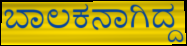
ಬಾಲಕನಾಗಿದ್ದ